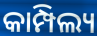
କାମ୍ପିଲ୍ୟ